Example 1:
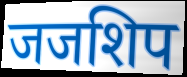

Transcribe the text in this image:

जजशिप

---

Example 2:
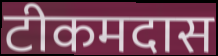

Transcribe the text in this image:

टीकमदास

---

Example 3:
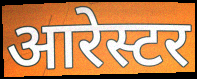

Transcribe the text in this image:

आरेस्टर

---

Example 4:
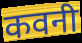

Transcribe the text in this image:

कवनी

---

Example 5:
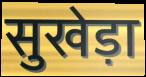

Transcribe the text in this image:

सुखेड़ा